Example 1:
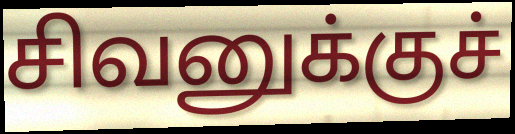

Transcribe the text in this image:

சிவனுக்குச்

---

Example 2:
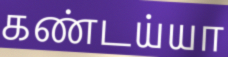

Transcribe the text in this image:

கண்டய்யா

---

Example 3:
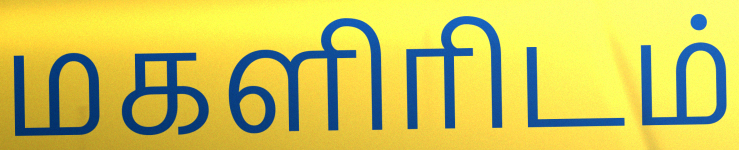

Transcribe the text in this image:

மகளிரிடம்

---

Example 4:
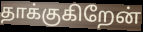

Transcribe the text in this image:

தாக்குகிறேன்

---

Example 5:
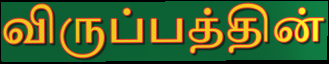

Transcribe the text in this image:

விருப்பத்தின்